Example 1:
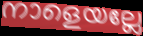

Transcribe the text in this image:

നാളെയല്ലേ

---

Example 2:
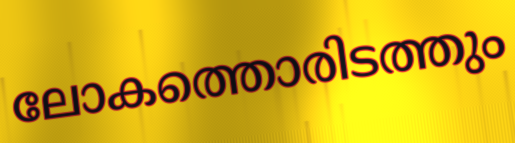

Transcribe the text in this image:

ലോകത്തൊരിടത്തും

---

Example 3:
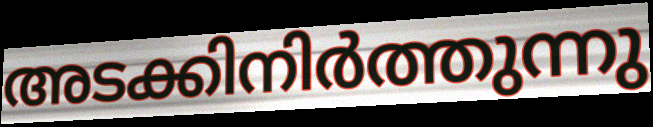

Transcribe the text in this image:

അടക്കിനിർത്തുന്നു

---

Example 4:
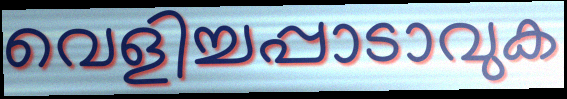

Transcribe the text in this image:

വെളിച്ചപ്പാടാവുക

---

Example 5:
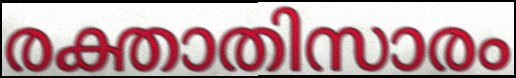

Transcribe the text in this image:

രക്താതിസാരം